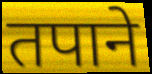
तपाने